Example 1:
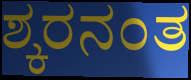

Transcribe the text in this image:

ಶ್ಕರನಂತ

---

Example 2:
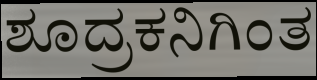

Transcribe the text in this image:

ಶೂದ್ರಕನಿಗಿಂತ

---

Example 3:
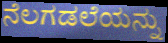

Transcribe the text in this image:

ನೆಲಗಡಲೆಯನ್ನು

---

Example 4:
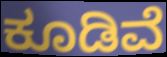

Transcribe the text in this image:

ಕೂಡಿವೆ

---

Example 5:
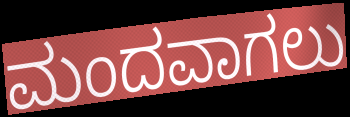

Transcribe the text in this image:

ಮಂದವಾಗಲು